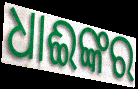
ଧାଈଙ୍କର